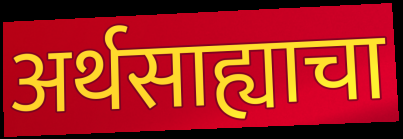
अर्थसाह्याचा